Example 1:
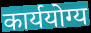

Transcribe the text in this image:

कार्ययोग्य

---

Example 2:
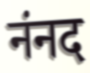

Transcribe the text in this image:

नंनद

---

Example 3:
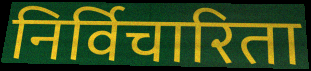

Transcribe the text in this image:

निर्विचारिता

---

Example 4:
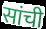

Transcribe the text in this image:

सांची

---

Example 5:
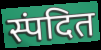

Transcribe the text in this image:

स्पंदित